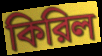
কিরিল